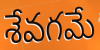
శేవగమే